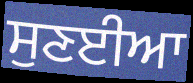
ਸੁਣਈਆ